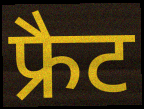
फ्रैट